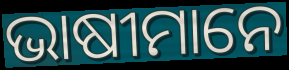
ଭାଷୀମାନେ